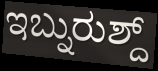
ಇಬ್ನುರುಶ್ದ್